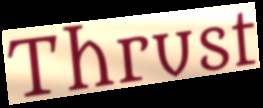
Thrust